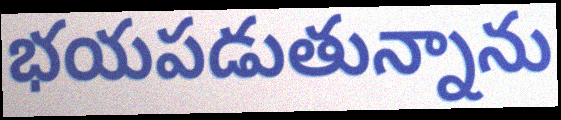
భయపడుతున్నాను